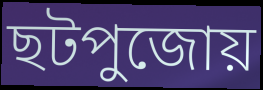
ছটপুজোয়